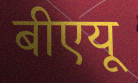
बीएयू